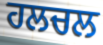
ਹਲਚਲ